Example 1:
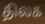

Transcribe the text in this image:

திலக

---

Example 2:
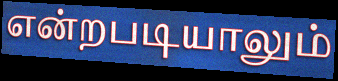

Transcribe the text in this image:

என்றபடியாலும்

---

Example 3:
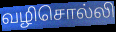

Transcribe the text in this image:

வழிசொல்லி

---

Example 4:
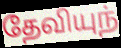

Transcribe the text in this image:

தேவியுந்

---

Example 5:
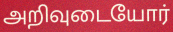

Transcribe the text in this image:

அறிவுடையோர்